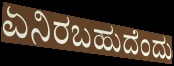
ಏನಿರಬಹುದೆಂದು